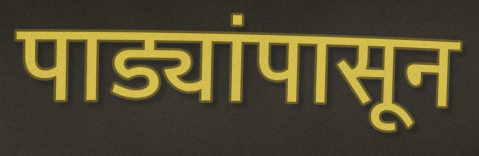
पाड्यांपासून